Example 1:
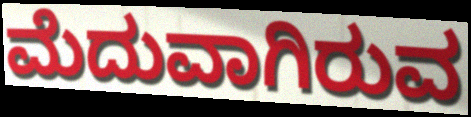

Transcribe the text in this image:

ಮೆದುವಾಗಿರುವ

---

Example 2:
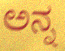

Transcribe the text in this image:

ಅನ್ನ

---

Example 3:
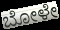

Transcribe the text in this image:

ಬೋಳೇ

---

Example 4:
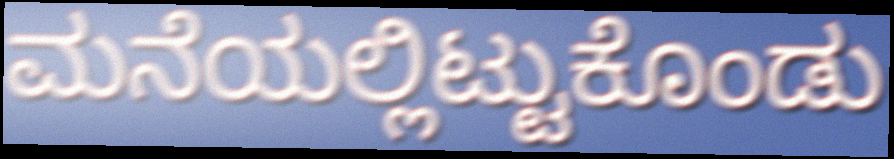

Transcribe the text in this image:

ಮನೆಯಲ್ಲಿಟ್ಟುಕೊಂಡು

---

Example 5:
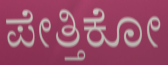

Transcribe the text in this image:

ಪೇತ್ತಿಕೋ